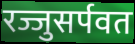
रज्जुसर्पवत